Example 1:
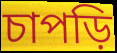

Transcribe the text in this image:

চাপড়ি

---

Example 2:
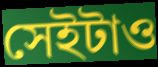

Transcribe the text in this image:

সেইটাও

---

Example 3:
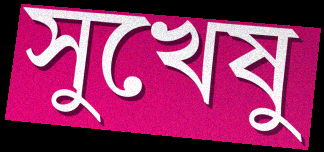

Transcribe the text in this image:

সুখেষু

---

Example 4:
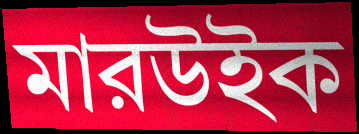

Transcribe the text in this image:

মারউইক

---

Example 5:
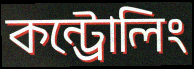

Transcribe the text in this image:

কন্ট্রোলিং